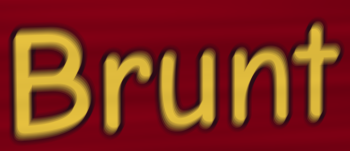
Brunt